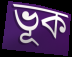
ভূক